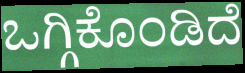
ಒಗ್ಗಿಕೊಂಡಿದೆ